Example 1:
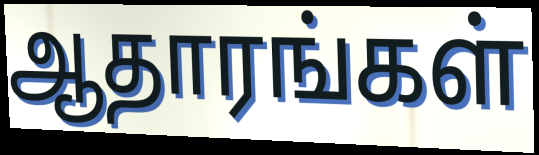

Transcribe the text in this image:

ஆதாரங்கள்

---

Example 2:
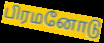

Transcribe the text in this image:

பிரமனோடு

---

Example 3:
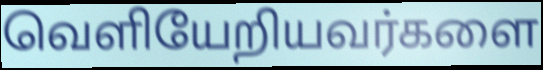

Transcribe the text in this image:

வெளியேறியவர்களை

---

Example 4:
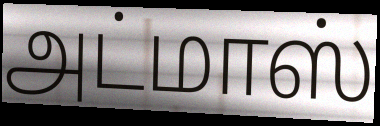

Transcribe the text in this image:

அட்மாஸ்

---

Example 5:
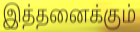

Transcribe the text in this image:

இத்தனைக்கும்